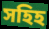
সহিহ